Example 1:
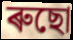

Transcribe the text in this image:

ৰুছো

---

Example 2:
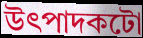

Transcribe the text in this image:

উৎপাদকটো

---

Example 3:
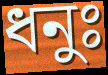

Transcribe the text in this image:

ধনুঃ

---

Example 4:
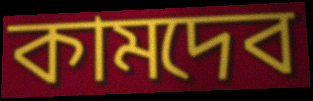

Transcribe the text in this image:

কামদেব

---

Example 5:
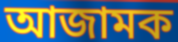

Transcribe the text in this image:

আজামক